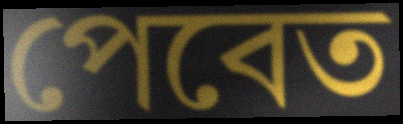
পেবেত